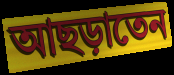
আছড়াতেন